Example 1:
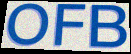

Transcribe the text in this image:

OFB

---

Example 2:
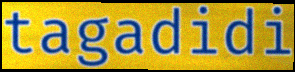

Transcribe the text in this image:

tagadidi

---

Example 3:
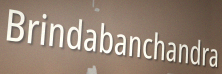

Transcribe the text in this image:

Brindabanchandra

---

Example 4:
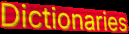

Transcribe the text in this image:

Dictionaries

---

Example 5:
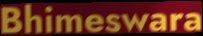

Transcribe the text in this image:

Bhimeswara